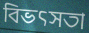
বিভৎসতা